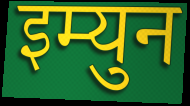
इम्युन